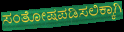
ಸಂತೋಷಪಡಿಸಲಿಕ್ಕಾಗಿ